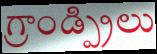
గ్రాండ్ప్రిలు